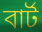
বাৰ্ট